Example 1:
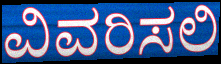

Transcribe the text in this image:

ವಿವರಿಸಲಿ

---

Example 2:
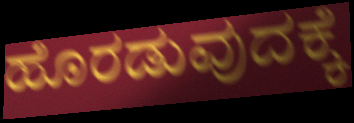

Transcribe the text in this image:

ಹೊರಡುವುದಕ್ಕೆ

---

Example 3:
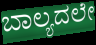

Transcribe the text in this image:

ಬಾಲ್ಯದಲೇ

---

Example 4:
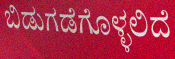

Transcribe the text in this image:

ಬಿಡುಗಡೆಗೊಳ್ಳಲಿದೆ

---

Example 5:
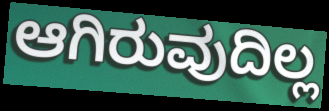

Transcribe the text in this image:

ಆಗಿರುವುದಿಲ್ಲ